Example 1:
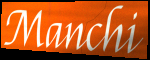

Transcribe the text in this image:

Manchi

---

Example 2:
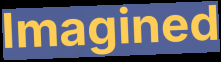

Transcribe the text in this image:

Imagined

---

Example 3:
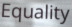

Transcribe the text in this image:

Equality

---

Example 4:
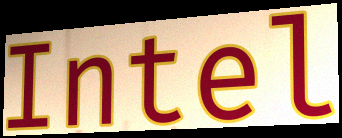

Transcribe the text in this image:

Intel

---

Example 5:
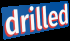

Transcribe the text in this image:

drilled